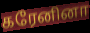
கரேனினா